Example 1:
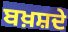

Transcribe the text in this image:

ਬਖ਼ਸ਼ਦੇ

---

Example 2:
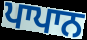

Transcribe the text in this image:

ਪਾਪਾਨ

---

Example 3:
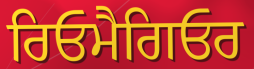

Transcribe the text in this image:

ਰਿਓਮੈਗਿਓਰ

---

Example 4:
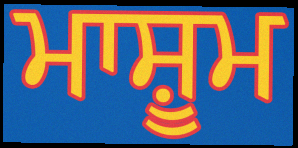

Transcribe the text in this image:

ਮਾਸ਼ੂਮ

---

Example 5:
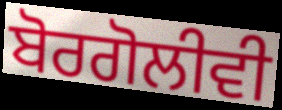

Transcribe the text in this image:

ਬੋਰਗੋਲੀਵੀ